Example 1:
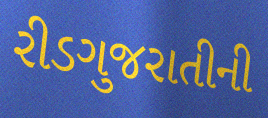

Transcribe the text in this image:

રીડગુજરાતીની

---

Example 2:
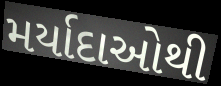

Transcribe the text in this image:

મર્યાદાઓથી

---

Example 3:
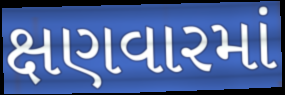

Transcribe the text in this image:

ક્ષણવારમાં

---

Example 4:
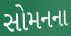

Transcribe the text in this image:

સોમનના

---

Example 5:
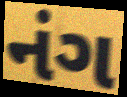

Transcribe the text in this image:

નંગ